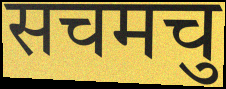
सचमचु